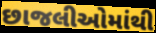
છાજલીઓમાંથી